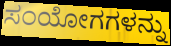
ಸಂಯೋಗಗಳನ್ನು